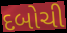
દબોચી